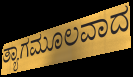
ತ್ಯಾಗಮೂಲವಾದ